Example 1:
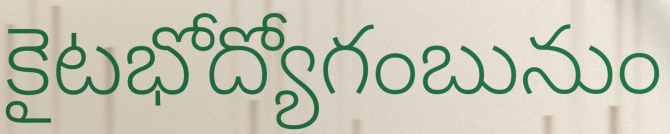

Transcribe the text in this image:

కైటభోద్యోగంబునుం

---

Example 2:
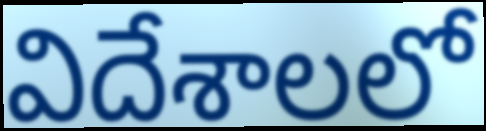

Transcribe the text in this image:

విదేశాలలో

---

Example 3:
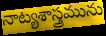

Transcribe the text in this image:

నాట్యశాస్త్రమును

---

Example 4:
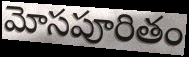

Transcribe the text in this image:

మోసపూరితం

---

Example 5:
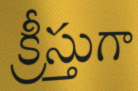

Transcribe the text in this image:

క్రీస్తుగా